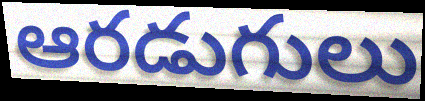
ఆరడుగులు